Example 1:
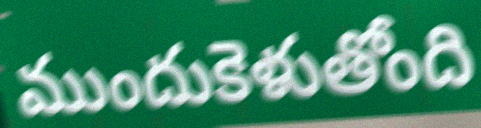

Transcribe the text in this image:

ముందుకెళుతోంది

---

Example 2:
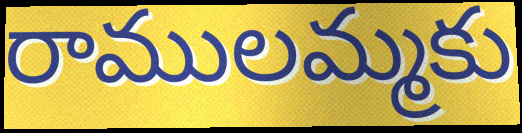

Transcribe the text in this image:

రాములమ్మకు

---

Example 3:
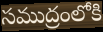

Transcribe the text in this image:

సముద్రంలోకి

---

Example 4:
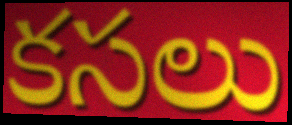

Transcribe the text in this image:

కసలు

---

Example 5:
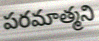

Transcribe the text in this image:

పరమాత్మని